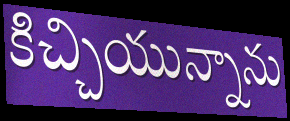
కిచ్చియున్నాను